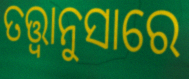
ତତ୍ତ୍ୱାନୁସାରେ